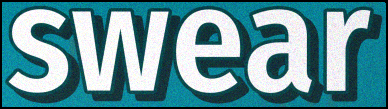
swear